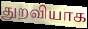
துறவியாக